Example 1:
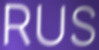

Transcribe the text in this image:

RUS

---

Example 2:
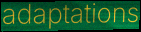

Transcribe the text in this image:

adaptations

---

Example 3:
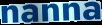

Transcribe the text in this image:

nanna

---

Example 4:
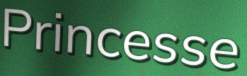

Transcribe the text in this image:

Princesse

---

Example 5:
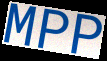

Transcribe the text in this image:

MPP